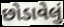
છોડાવેલું